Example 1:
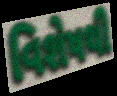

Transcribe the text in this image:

વિશેષથી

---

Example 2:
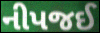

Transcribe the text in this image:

નીપજઈ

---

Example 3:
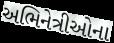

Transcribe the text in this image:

અભિનેત્રીઓના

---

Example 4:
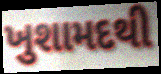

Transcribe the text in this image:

ખુશામદથી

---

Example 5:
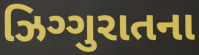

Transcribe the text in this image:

ઝિગ્ગુરાતના